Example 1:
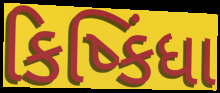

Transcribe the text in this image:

કિષ્કિંધા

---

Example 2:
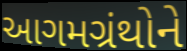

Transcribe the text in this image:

આગમગ્રંથોને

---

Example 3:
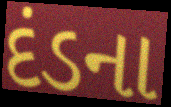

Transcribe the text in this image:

દંડના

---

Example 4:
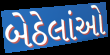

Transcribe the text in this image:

બેઠેલાંઓ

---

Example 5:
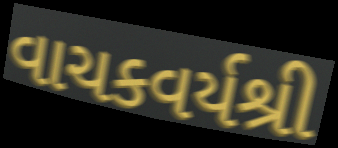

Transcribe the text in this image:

વાચકવર્યશ્રી